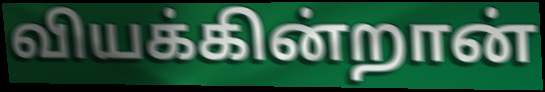
வியக்கின்றான்